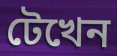
টেখেন